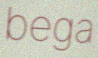
bega